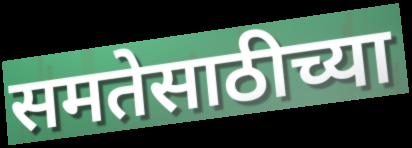
समतेसाठीच्या